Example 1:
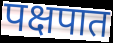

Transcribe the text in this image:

पक्षपात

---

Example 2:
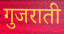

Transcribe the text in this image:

गुजराती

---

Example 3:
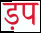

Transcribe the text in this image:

ड़प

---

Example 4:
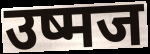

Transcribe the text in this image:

उष्मज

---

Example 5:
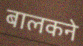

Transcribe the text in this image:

बालकने